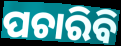
ପଚାରିବି